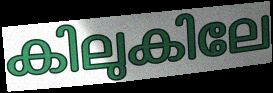
കിലുകിലേ